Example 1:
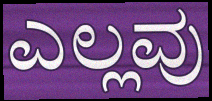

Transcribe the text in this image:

ಎಲ್ಲವು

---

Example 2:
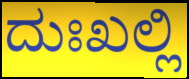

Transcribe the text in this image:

ದುಃಖಲ್ಲಿ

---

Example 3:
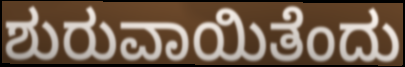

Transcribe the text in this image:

ಶುರುವಾಯಿತೆಂದು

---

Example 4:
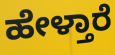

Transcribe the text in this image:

ಹೇಳ್ತಾರೆ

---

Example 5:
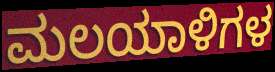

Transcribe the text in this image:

ಮಲಯಾಳಿಗಳ